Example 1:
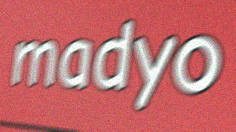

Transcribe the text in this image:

madyo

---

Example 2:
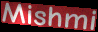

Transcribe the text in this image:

Mishmi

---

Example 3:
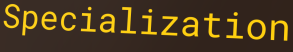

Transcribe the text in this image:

Specialization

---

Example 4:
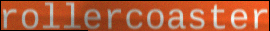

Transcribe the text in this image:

rollercoaster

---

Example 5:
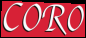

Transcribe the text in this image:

CORO